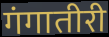
गंगातीरी